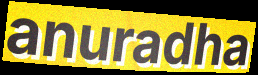
anuradha